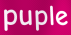
puple